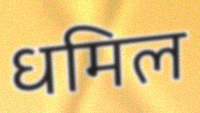
धमिल